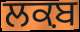
ਲਕ਼ਬ